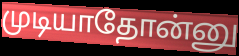
முடியாதோன்னு